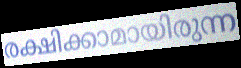
രക്ഷിക്കാമായിരുന്ന